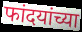
फांदयांच्या